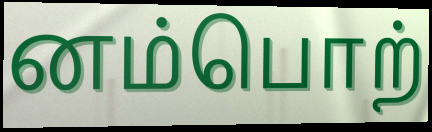
னம்பொற்